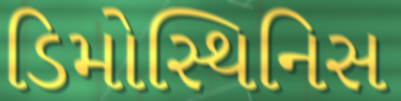
ડિમોસ્થિનિસ